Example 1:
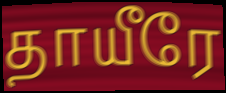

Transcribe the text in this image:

தாயீரே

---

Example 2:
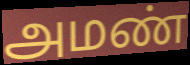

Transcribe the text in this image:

அமண்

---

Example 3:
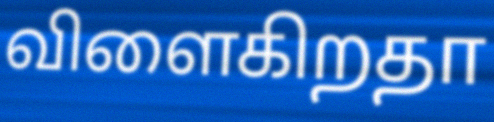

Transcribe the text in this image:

விளைகிறதா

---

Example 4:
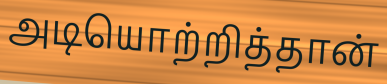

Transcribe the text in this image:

அடியொற்றித்தான்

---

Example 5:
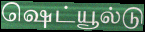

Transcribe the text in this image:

ஷெட்யூல்டு